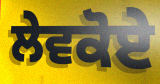
ਲੇਵਕੋਏ